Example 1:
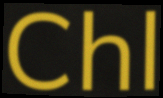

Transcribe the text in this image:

Chl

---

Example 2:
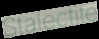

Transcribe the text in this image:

Stalectite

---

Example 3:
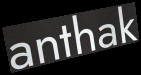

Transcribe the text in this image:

anthak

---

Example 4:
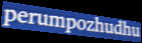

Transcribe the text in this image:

perumpozhudhu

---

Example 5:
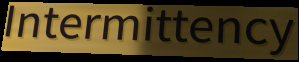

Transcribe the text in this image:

Intermittency